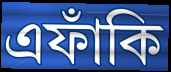
এফাঁকি